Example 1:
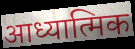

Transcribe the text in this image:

आध्यात्मिक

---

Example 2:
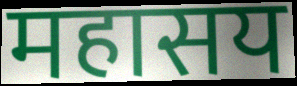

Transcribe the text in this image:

महासय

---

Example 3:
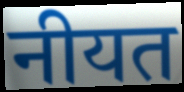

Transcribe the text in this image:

नीयत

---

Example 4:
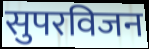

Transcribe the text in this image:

सुपरविजन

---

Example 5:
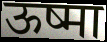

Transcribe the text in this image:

ऊष्मा